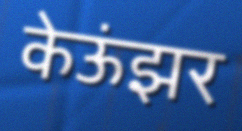
केऊंझर